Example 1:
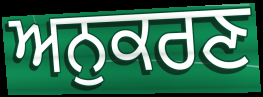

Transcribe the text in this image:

ਅਨੁਕਰਣ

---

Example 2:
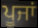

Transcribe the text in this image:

ਪੂਜਾਂ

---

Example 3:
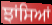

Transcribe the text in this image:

ਝਾਂਸਿਆਂ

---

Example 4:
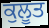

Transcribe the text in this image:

ਕੁਲੂਤ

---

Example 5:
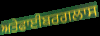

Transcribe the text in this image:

ਅਤੇਫਾਈਬਰਗਲਾਸ